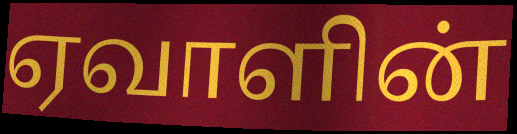
ஏவாளின்